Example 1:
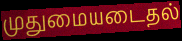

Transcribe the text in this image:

முதுமையடைதல்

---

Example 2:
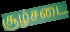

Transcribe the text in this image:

சூழ்சடை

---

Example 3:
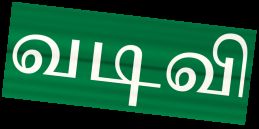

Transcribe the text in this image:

வடிவி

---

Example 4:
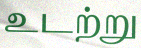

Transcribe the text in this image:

உடற்று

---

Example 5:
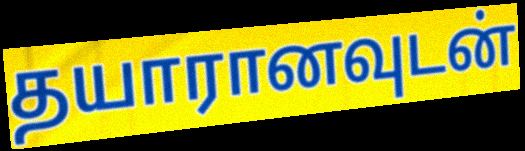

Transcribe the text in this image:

தயாரானவுடன்